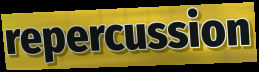
repercussion